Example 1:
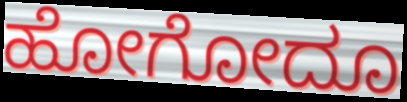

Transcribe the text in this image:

ಹೋಗೋದೂ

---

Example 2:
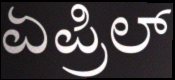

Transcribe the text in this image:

ಏಪ್ರಿಲ್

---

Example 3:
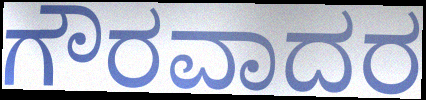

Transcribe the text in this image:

ಗೌರವಾದರ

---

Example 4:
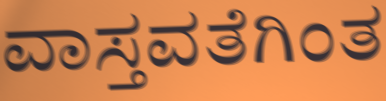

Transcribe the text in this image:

ವಾಸ್ತವತೆಗಿಂತ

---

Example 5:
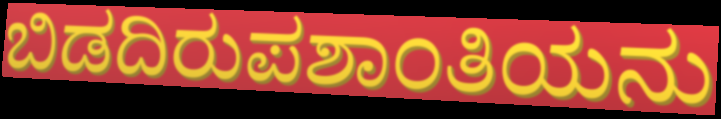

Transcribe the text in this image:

ಬಿಡದಿರುಪಶಾಂತಿಯನು